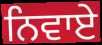
ਨਿਵਾਏ